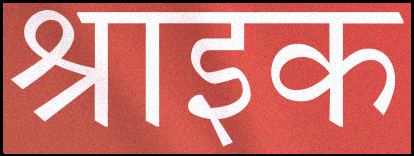
श्राइक